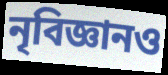
নৃবিজ্ঞানও